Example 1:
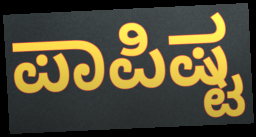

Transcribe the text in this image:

ಪಾಪಿಷ್ಟ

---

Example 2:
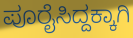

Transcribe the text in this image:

ಪೂರೈಸಿದ್ದಕ್ಕಾಗಿ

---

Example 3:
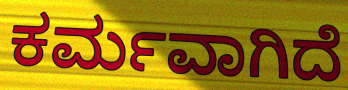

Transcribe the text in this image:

ಕರ್ಮವಾಗಿದೆ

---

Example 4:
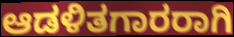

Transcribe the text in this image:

ಆಡಳಿತಗಾರರಾಗಿ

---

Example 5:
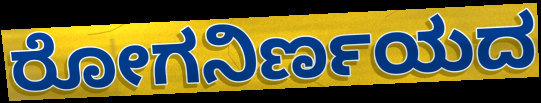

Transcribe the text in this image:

ರೋಗನಿರ್ಣಯದ